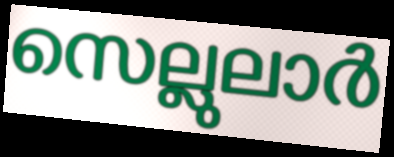
സെല്ലുലാർ